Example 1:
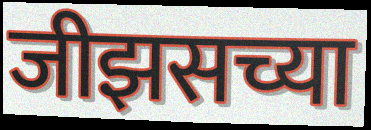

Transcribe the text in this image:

जीझसच्या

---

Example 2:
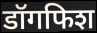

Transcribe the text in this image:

डॉगफिश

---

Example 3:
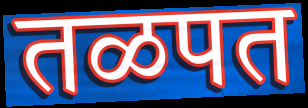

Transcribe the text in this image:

तळपत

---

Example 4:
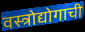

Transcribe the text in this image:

वस्त्रोद्योगाची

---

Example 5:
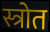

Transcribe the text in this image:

स्त्रोत